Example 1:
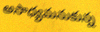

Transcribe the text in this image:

అసాధ్యమనుకున్న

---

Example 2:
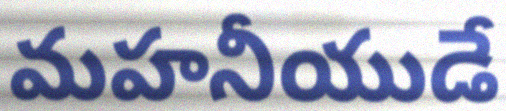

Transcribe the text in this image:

మహనీయుడే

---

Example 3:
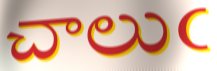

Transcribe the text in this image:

చాలుఁ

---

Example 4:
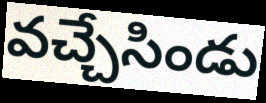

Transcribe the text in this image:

వచ్చేసిండు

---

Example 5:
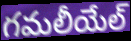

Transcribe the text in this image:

గమలీయేల్